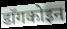
डॉगकोइन